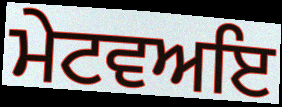
ਮੇਟਵਅਇ